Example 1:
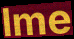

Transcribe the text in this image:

Ime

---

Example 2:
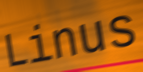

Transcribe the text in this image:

Linus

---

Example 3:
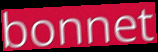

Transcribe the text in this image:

bonnet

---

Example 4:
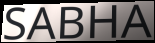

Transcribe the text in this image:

SABHA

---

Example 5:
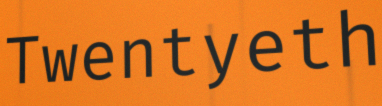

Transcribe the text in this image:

Twentyeth